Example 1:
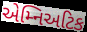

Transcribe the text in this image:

એમ્નિઅટિક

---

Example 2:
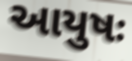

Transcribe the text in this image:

આયુષઃ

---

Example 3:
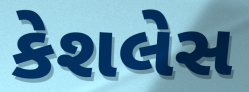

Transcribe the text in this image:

કેશલેસ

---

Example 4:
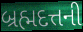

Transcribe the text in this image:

બ્રહ્મદત્તની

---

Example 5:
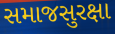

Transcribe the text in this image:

સમાજસુરક્ષા